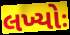
લખ્યોઃ